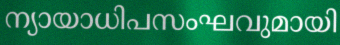
ന്യായാധിപസംഘവുമായി